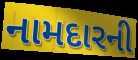
નામદારની